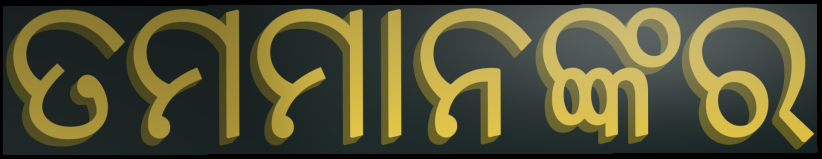
ତମମାନଙ୍କର